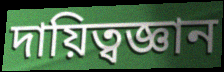
দায়িত্বজ্ঞান